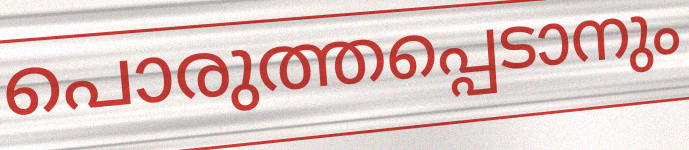
പൊരുത്തപ്പെടാനും